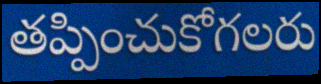
తప్పించుకోగలరు